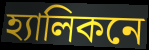
হ্যালিকনে